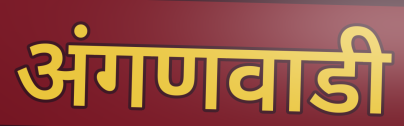
अंगणवाडी